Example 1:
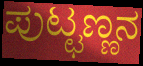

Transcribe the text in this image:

ಪುಟ್ಟಣ್ಣನ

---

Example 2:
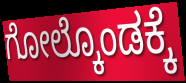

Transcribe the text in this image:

ಗೋಲ್ಕೊಂಡಕ್ಕೆ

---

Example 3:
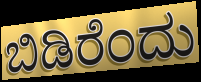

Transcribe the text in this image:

ಬಿಡಿರೆಂದು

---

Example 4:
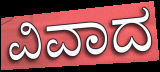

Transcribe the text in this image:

ವಿವಾದ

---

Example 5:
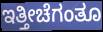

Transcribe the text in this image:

ಇತ್ತೀಚೆಗಂತೂ